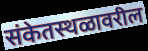
संकेतस्थळावरील